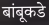
बांबूकडे